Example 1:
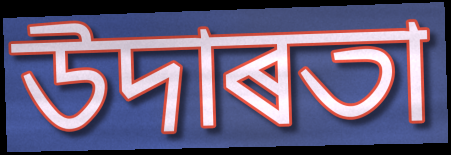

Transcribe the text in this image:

উদাৰতা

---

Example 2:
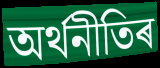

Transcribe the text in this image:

অৰ্থনীতিৰ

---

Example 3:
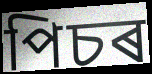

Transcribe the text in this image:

পিচৰ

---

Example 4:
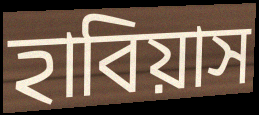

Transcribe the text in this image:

হাবিয়াস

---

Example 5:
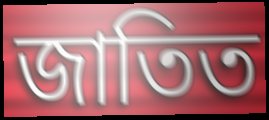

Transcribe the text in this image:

জাতিত